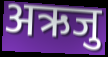
अऋजु